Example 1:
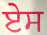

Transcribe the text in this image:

ਏਸ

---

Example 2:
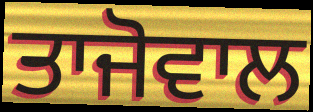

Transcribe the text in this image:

ਤਾਜੋਵਾਲ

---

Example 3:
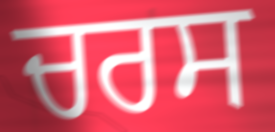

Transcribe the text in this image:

ਚਰਸ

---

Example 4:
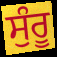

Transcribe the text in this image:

ਸੁੰਰੂ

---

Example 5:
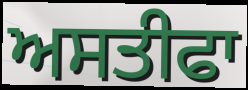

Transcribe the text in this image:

ਅਸਤੀਫਾ